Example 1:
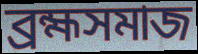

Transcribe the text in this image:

ব্রহ্মসমাজ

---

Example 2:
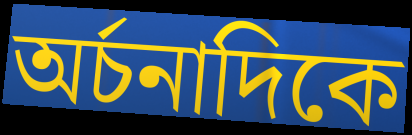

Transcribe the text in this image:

অর্চনাদিকে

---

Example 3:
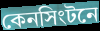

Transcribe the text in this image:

কেনসিংটনে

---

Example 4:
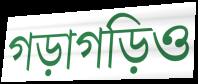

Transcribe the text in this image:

গড়াগড়িও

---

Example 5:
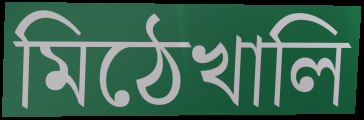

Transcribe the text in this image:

মিঠেখালি